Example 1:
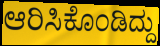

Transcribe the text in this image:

ಆರಿಸಿಕೊಂಡಿದ್ದು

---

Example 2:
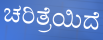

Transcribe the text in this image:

ಚರಿತ್ರೆಯಿದೆ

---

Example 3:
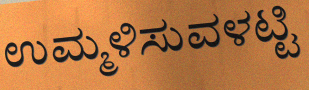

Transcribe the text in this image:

ಉಮ್ಮಳಿಸುವಳಟ್ಟಿ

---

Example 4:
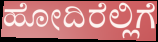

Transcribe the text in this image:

ಹೋದಿರೆಲ್ಲಿಗೆ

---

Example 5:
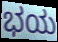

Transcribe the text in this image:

ಭಯ